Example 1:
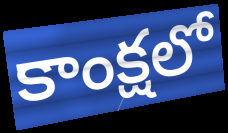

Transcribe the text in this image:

కాంక్షలో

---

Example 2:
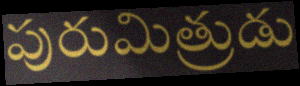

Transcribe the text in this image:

పురుమిత్రుడు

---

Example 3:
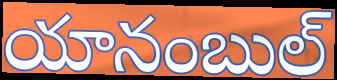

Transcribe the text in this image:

యానంబుల్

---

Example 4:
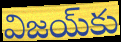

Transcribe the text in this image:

విజయ్‌కు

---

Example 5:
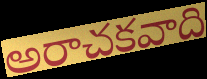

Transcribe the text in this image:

అరాచకవాది